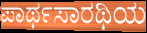
ಪಾರ್ಥಸಾರಥಿಯ